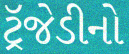
ટ્રૅજેડીનો